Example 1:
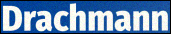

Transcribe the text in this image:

Drachmann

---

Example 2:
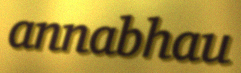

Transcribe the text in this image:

annabhau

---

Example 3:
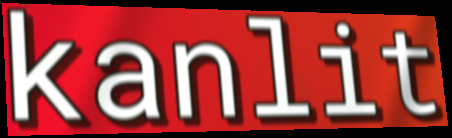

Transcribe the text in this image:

kanlit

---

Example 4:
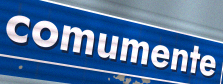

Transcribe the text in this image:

comumente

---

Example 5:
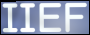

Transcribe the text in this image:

IIEF